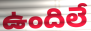
ఉందిలే